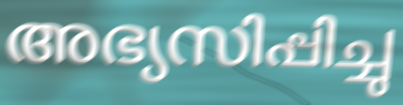
അഭ്യസിപ്പിച്ചു